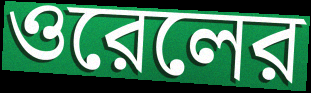
ওরেলের